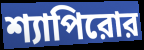
শ্যাপিরোর